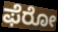
ಫೆರೋ